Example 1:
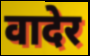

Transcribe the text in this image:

वादेर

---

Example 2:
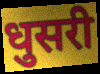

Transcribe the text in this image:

धुसरी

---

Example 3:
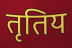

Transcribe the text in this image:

तृतिय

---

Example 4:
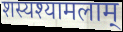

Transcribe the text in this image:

शस्यश्यामलाम्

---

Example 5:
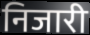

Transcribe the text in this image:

निजारी